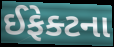
ઈફેક્ટના